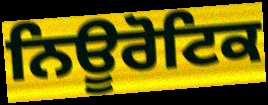
ਨਿਊਰੋਟਿਕ